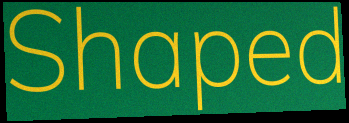
Shaped